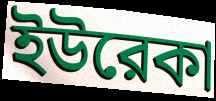
ইউরেকা